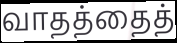
வாதத்தைத்